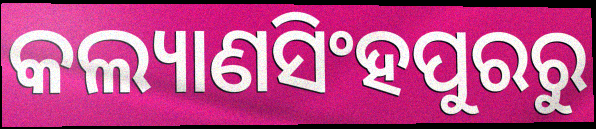
କଲ୍ୟାଣସିଂହପୁରରୁ